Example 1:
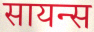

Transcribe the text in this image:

सायन्स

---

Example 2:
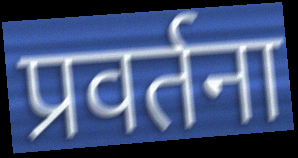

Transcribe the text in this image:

प्रवर्तना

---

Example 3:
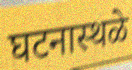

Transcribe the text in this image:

घटनास्थळे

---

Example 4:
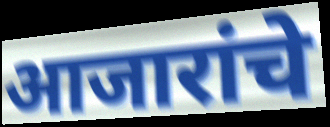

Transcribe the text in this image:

आजारांचे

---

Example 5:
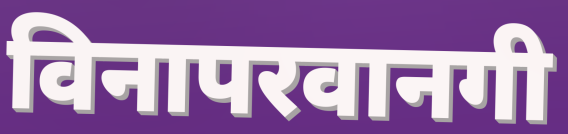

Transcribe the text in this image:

विनापरवानगी